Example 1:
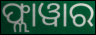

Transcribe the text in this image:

ଫ୍ଲାୱାର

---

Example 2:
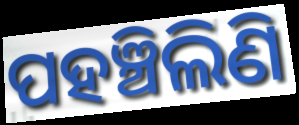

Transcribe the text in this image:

ପହଞ୍ଚିଲିଣି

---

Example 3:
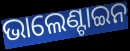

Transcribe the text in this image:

ଭାଲେଣ୍ଟାଇନ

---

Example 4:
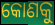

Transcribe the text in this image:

କୋଣକୁ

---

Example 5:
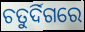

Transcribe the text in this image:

ଚତୁର୍ଦିଗରେ